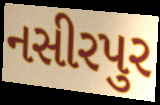
નસીરપુર